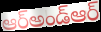
ఆర్అండ్ఆర్